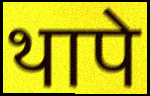
थापे